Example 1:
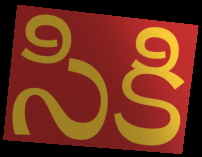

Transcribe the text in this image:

సికి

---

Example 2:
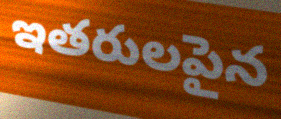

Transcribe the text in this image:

ఇతరులపైన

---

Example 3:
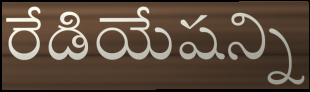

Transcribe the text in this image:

రేడియేషన్ని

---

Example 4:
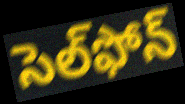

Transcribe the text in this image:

సెల్‌ఫోన్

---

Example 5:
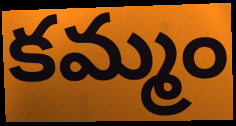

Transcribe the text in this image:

కమ్మం